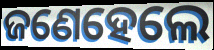
ଜଣେହେଲେ